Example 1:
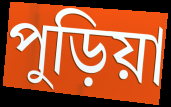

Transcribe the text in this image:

পুড়িয়া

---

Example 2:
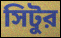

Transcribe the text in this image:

সিটুর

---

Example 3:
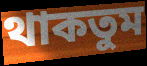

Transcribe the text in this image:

থাকতুম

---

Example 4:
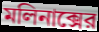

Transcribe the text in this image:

মলিনাক্সের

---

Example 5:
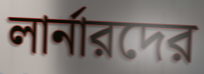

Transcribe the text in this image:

লার্নারদের